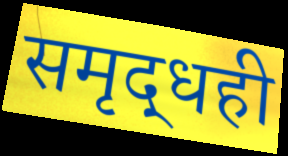
समृद्धही